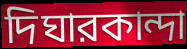
দিঘারকান্দা